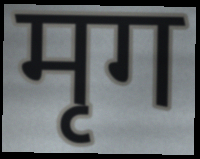
मृग